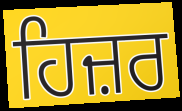
ਹਿਜ਼ਰ